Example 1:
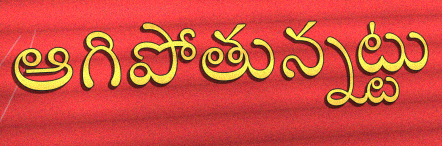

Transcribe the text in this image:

ఆగిపోతున్నట్టు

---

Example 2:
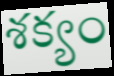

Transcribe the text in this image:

శక్యం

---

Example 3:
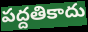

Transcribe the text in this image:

పద్దతికాదు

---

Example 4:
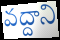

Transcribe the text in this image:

వద్దాని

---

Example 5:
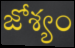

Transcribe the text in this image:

జోశ్యం